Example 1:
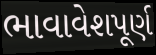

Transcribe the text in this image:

ભાવાવેશપૂર્ણ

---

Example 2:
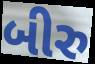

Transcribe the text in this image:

બીરુ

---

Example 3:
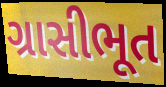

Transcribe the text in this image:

ગ્રાસીભૂત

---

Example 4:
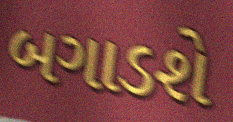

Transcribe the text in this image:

બગાડશે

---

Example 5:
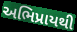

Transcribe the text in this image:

અભિપ્રાયથી